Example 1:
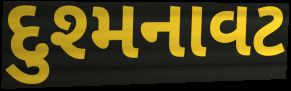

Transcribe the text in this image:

દુશ્મનાવટ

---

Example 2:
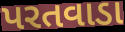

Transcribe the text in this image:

પરતવાડા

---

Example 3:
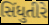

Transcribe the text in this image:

સિંધુતીરે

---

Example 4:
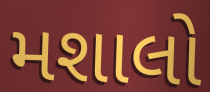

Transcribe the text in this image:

મશાલો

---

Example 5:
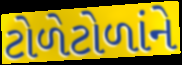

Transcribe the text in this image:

ટોળેટોળાંને